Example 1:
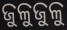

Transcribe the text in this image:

ଜୁଳୁଜୁଳୁ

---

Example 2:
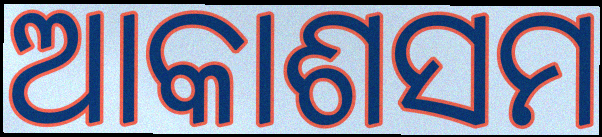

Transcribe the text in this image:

ଆକାଶସମ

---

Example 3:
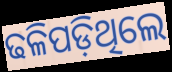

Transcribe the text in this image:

ଢଳିପଡ଼ିଥିଲେ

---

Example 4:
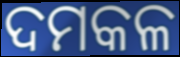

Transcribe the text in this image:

ଦମକଳ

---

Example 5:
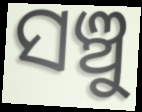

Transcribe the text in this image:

ସଞ୍ଚୁ